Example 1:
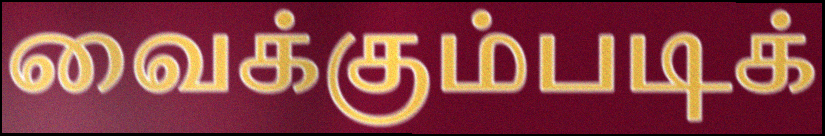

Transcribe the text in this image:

வைக்கும்படிக்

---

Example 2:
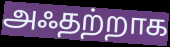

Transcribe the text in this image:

அஃதற்றாக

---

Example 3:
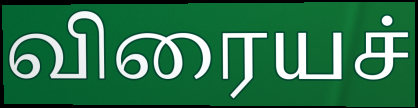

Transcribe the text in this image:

விரையச்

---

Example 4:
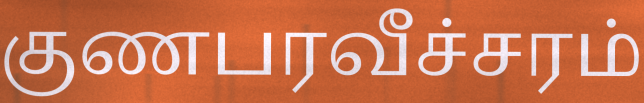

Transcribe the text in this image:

குணபரவீச்சரம்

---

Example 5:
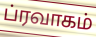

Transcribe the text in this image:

ப்ரவாகம்